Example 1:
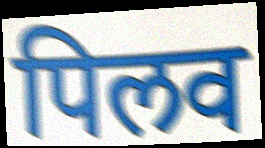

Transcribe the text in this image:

पिलव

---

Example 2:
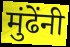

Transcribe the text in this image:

मुंढेंनी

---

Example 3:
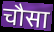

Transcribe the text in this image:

चौसा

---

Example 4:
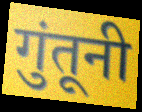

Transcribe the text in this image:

गुंतूनी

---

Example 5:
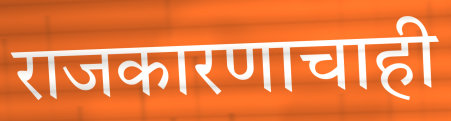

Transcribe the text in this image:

राजकारणाचाही